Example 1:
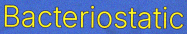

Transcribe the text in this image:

Bacteriostatic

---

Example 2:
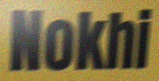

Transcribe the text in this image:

Nokhi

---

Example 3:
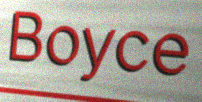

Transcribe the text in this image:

Boyce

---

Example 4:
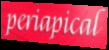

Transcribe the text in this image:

periapical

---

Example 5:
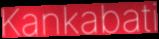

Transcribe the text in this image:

Kankabati